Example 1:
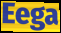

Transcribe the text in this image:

Eega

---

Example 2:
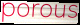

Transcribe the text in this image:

porous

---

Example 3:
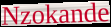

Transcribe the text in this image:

Nzokande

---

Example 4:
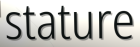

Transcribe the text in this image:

stature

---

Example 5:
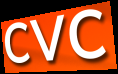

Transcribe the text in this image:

cvc